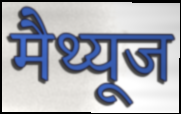
मैथ्यूज